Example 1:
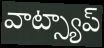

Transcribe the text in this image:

వాట్స్యాప్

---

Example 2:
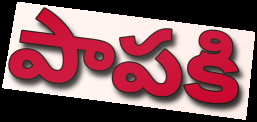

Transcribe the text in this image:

పాపకి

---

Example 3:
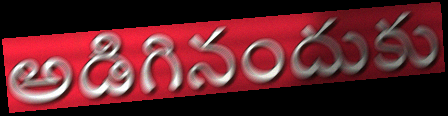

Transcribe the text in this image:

అడిగినందుకు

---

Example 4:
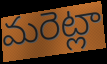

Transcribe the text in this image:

మరెట్లా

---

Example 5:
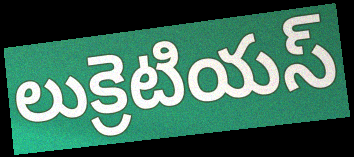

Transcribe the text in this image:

లుక్రెటియస్